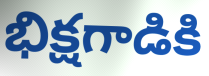
భిక్షగాడికి